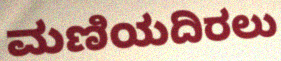
ಮಣಿಯದಿರಲು